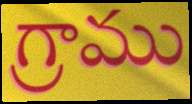
గ్రాము